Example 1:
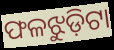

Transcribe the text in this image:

ଫଳଝୁଡ଼ିଟା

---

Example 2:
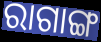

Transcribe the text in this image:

ରାଗାଙ୍ଗ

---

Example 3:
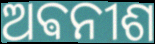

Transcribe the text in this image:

ଅଵନୀଶ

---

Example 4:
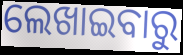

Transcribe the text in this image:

ଲେଖାଇବାରୁ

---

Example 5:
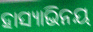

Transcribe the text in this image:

ହାସ୍ୟାଭିନୟ